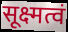
सूक्ष्मत्वं